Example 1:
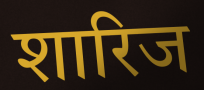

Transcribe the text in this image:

शारिज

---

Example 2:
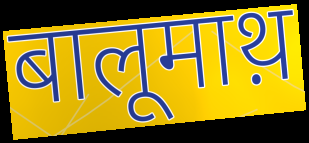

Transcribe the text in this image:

बालूमाथ़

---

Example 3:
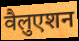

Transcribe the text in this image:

वैलुएशन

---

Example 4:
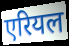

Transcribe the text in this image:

एरियल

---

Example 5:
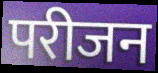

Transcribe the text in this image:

परीजन